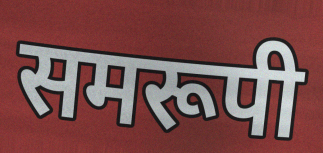
समरूपी